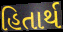
હિતાર્થ